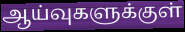
ஆய்வுகளுக்குள்